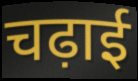
चढ़ाई